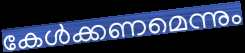
കേൾക്കണമെന്നും